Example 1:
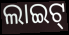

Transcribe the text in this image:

ଲାଇଟ୍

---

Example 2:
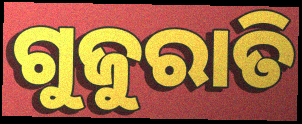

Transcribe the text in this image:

ଗୁଜୁରାତି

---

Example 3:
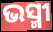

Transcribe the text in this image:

ଭସ୍ମୀ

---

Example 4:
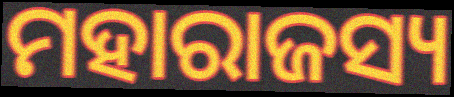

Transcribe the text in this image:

ମହାରାଜସ୍ୟ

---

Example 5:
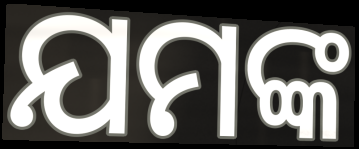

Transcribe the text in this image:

ଯମଙ୍କ